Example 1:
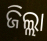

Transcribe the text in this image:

ଜିଲ୍ଲା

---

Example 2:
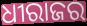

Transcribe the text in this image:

ଧୀରାଜର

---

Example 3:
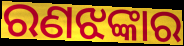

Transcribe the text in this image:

ରଣଝଙ୍କାର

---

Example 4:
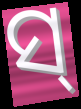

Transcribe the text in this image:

ସ୍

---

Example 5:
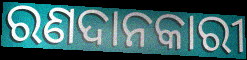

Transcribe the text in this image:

ରଣଦାନକାରୀ